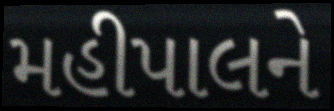
મહીપાલને